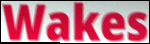
Wakes